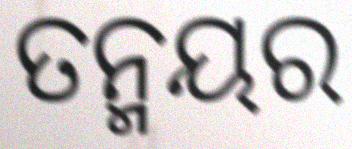
ତନ୍ମୟର